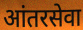
आंतरसेवा